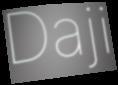
Daji